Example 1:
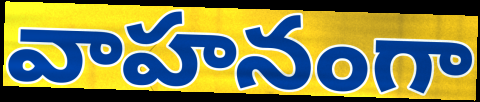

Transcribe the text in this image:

వాహనంగా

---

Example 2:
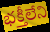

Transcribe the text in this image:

భక్తీలేని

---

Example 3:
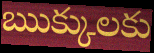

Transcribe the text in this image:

ఋక్కులకు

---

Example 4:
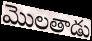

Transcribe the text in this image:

మొలతాడు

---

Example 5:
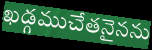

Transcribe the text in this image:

ఖడ్గముచేతనైనను